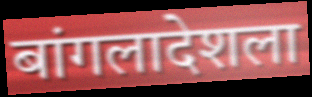
बांगलादेशला